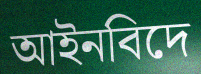
আইনবিদে